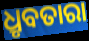
ଧ୍ରୃବତାରା